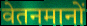
वेतनमानों